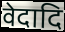
वेदादि